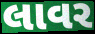
લાવર